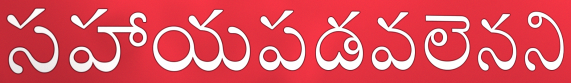
సహాయపడవలెనని